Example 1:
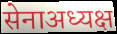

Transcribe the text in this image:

सेनाअध्यक्ष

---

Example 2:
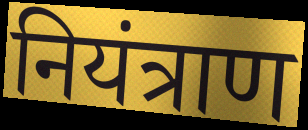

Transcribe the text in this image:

नियंत्राण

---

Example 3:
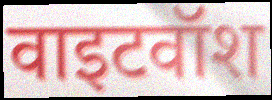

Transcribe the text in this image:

वाइटवॉश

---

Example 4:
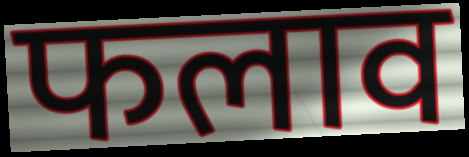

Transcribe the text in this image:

फलाव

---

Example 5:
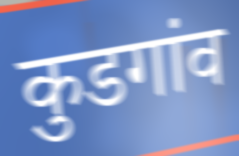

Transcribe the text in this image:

कुडगांव